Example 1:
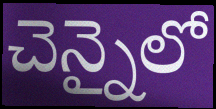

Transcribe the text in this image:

చెన్నైలో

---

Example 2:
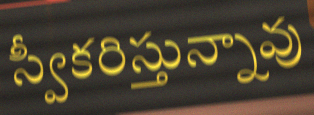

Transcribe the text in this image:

స్వీకరిస్తున్నావు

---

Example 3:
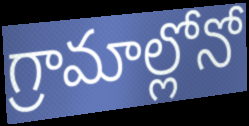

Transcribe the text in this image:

గ్రామాల్లోనో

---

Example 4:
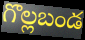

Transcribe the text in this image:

గొల్లబండ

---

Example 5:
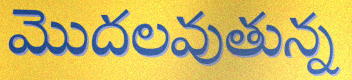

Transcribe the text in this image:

మొదలవుతున్న